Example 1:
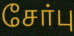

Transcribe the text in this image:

சேர்பு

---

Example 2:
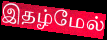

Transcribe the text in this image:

இதழ்மேல்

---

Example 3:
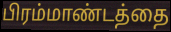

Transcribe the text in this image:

பிரம்மாண்டத்தை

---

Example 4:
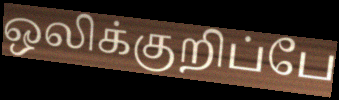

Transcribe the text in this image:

ஒலிக்குறிப்பே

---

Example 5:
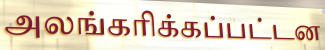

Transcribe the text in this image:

அலங்கரிக்கப்பட்டன